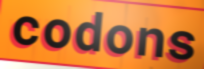
codons